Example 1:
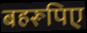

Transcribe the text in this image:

बहरूपिए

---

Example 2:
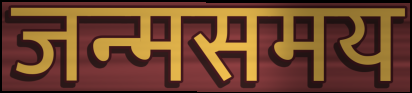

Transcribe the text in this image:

जन्मसमय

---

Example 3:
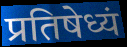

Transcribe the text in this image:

प्रतिषेध्यं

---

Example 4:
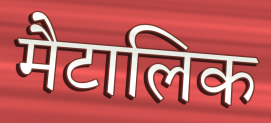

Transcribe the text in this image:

मैटालिक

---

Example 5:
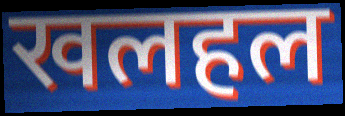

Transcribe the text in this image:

खलहल